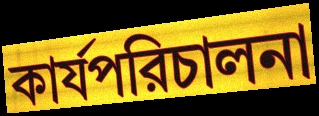
কার্যপরিচালনা